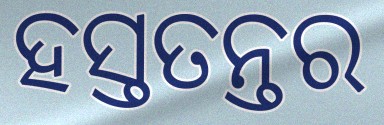
ହସ୍ତତନ୍ତର